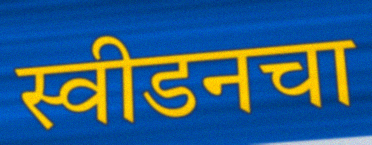
स्वीडनचा